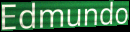
Edmundo